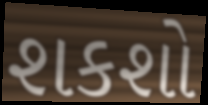
શકશો